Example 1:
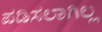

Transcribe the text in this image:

ಪಡಿಸಲಾಗಿಲ್ಲ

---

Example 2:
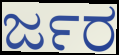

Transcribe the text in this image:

ರ್ಜರ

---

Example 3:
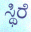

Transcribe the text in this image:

ಸ್ಥಿರೆ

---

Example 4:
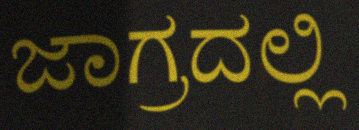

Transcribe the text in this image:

ಜಾಗ್ರದಲ್ಲಿ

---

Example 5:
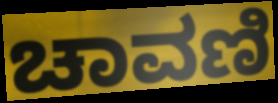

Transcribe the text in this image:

ಚಾವಣಿ